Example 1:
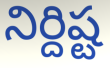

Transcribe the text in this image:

నిర్దిష్ట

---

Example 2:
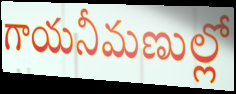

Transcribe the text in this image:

గాయనీమణుల్లో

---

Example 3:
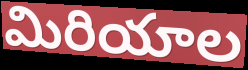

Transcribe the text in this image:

మిరియాల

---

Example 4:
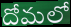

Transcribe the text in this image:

దోమలో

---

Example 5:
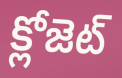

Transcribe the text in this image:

క్లోజెట్